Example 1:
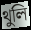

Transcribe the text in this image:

থুলি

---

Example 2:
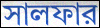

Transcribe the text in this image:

সালফার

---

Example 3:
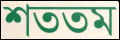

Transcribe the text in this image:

শততম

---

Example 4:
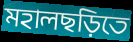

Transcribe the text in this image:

মহালছড়িতে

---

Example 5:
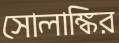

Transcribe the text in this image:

সোলাঙ্কির